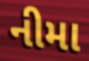
નીમા